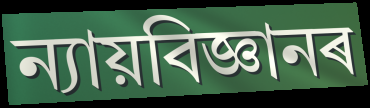
ন্যায়বিজ্ঞানৰ